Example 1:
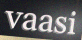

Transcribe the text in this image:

vaasi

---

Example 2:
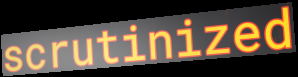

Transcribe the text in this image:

scrutinized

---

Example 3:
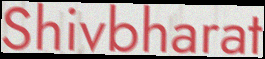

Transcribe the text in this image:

Shivbharat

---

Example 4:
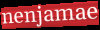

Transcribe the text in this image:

nenjamae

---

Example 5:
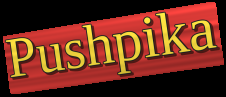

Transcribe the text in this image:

Pushpika